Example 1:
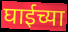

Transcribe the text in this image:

घाईच्या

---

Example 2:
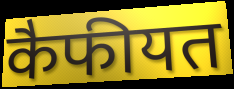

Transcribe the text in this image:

कैफीयत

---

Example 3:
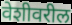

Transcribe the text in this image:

वेशीवरील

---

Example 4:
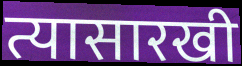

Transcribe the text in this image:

त्यासारखी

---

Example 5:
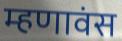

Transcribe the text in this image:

म्हणावंस